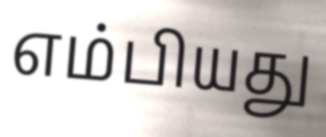
எம்பியது